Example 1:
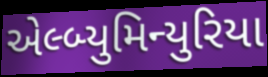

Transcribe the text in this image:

એલ્બ્યુમિન્યુરિયા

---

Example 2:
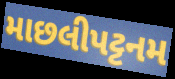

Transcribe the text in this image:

માછલીપટ્ટનમ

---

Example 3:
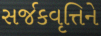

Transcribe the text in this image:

સર્જકવૃત્તિને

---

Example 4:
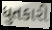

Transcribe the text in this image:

ધુતકારી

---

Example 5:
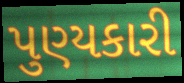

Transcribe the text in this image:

પુણ્યકારી